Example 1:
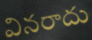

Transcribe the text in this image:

వినరాదు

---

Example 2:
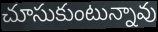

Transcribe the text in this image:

చూసుకుంటున్నావు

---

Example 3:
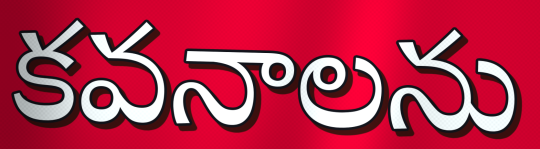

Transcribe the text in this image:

కవనాలను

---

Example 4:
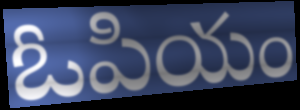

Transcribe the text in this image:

ఓపియం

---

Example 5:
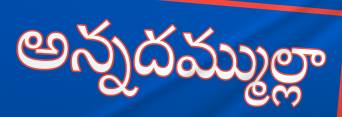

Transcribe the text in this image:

అన్నదమ్ముల్లా